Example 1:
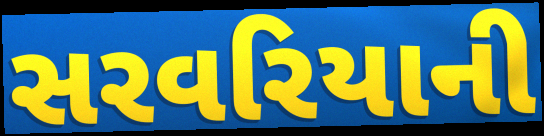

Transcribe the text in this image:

સરવરિયાની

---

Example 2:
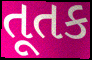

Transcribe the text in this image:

તૂતક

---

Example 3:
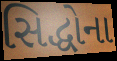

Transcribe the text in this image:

સિદ્ધોના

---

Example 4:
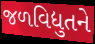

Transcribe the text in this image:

જળવિદ્યુતને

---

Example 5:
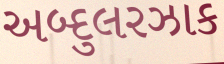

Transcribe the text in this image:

અબ્દુલરઝાક